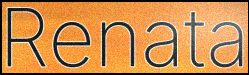
Renata